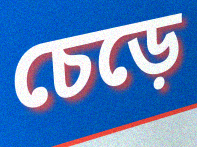
চেড়ে